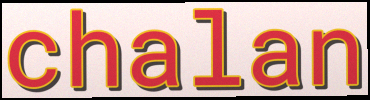
chalan